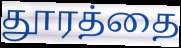
தூரத்தை